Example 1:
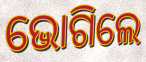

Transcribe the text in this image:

ଭୋଗିଲେ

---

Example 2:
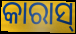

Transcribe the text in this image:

କାରାସ୍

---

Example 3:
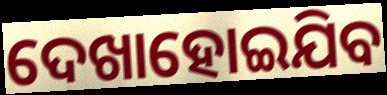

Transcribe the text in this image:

ଦେଖାହୋଇଯିବ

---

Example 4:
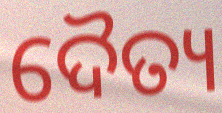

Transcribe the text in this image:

ଦୈତ୍ୟ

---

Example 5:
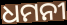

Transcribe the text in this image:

ଧମନୀ